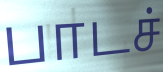
பாடச்